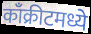
काँक्रीटमध्ये